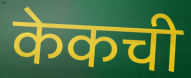
केकची